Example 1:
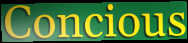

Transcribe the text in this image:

Concious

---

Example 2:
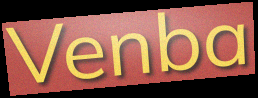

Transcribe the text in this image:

Venba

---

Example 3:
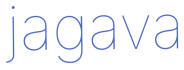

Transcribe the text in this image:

jagava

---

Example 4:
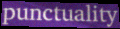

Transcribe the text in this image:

punctuality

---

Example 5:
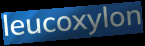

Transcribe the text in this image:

leucoxylon